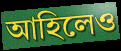
আহিলেও